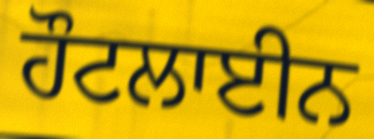
ਹੌਟਲਾਈਨ